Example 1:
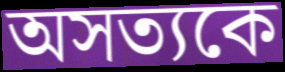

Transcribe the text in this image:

অসত্যকে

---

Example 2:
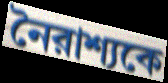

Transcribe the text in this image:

নৈরাশ্যকে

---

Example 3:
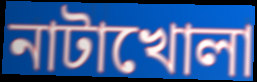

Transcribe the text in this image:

নাটাখোলা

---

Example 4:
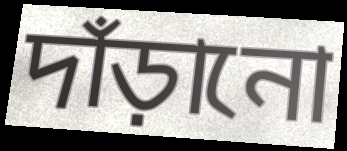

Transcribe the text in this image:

দাঁড়ানো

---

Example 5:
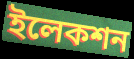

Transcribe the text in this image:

ইলেকশন